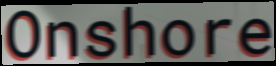
Onshore